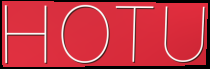
HOTU